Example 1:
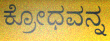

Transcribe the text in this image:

ಕ್ರೋಧವನ್ನ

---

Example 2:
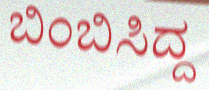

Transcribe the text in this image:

ಬಿಂಬಿಸಿದ್ದ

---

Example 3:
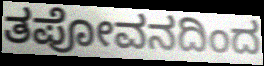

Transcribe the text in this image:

ತಪೋವನದಿಂದ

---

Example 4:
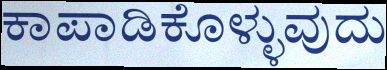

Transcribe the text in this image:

ಕಾಪಾಡಿಕೊಳ್ಳುವುದು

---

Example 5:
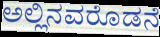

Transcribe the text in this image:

ಅಲ್ಲಿನವರೊಡನೆ